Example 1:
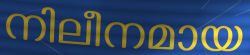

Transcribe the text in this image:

നിലീനമായ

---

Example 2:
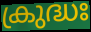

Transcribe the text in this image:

ക്രുദ്ധഃ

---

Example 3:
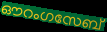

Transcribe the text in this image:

ഔറംഗസേബ്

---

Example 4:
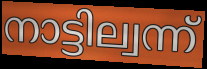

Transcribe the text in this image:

നാട്ടില്വന്ന്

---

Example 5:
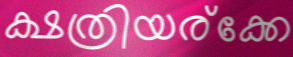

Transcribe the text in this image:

ക്ഷത്രിയര്ക്കേ